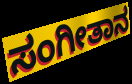
ಸಂಗೀತಾನ